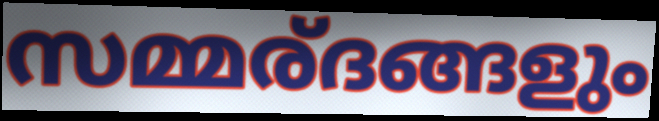
സമ്മര്ദങ്ങളും